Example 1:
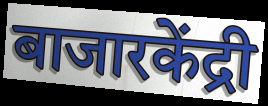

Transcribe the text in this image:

बाजारकेंद्री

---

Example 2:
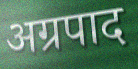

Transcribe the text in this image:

अग्रपाद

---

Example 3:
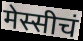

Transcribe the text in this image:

मेस्सीचं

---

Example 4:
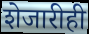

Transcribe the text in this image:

शेजारीही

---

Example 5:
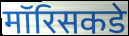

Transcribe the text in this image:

मॉरिसकडे